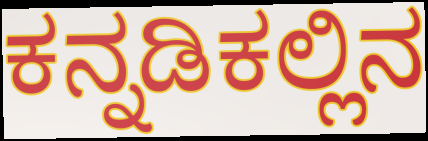
ಕನ್ನಡಿಕಲ್ಲಿನ